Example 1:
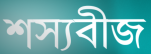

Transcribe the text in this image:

শস্যবীজ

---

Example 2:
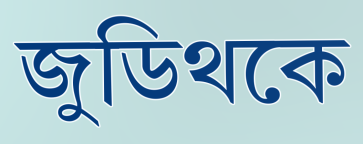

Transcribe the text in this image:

জুডিথকে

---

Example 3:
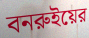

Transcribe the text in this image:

বনরুইয়ের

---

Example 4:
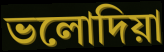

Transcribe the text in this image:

ভলোদিয়া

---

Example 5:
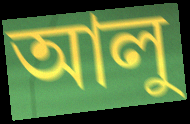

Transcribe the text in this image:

আলু